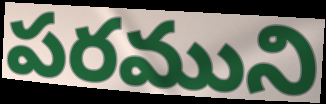
పరముని